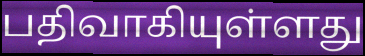
பதிவாகியுள்ளது